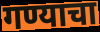
गण्याचा